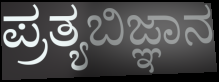
ಪ್ರತ್ಯಬಿಜ್ಞಾನ